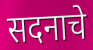
सदनाचे